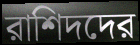
রাশিদদের